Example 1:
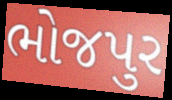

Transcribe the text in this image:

ભોજપુર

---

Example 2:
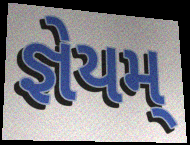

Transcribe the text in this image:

જ્ઞેયમ્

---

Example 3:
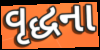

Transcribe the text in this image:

વૃદ્ધના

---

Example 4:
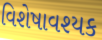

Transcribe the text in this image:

વિશેષાવશ્યક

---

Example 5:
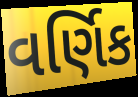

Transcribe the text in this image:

વર્ણિક